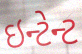
ઇન્ટેન્ટ